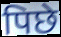
पिछे